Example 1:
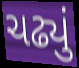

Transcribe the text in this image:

ચઢ્યું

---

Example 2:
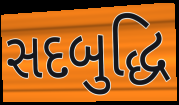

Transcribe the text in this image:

સદબુદ્ધિ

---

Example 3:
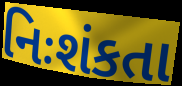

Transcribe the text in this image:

નિઃશંકતા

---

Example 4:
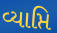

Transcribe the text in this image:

વ્યાપ્તિ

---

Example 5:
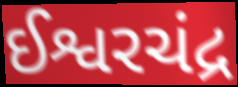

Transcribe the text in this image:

ઈશ્વરચંદ્ર